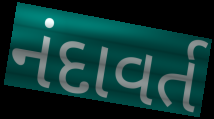
નંદાવર્ત